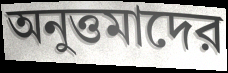
অনুত্তমাদের